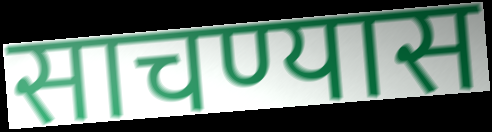
साचण्यास